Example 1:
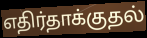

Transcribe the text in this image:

எதிர்தாக்குதல்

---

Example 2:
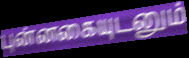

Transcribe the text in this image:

புன்னகையுடனும்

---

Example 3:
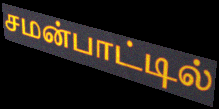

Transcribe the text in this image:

சமன்பாட்டில்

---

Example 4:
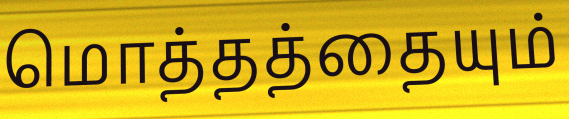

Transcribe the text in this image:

மொத்தத்தையும்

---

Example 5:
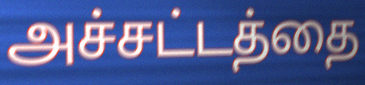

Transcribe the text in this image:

அச்சட்டத்தை